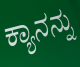
ಕ್ಯಾನನ್ನು